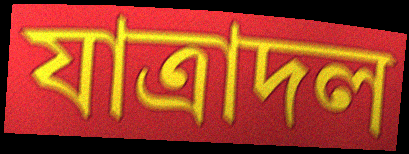
যাত্রাদল